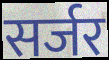
सर्जर